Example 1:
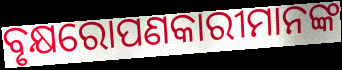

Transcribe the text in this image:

ବୃକ୍ଷରୋପଣକାରୀମାନଙ୍କ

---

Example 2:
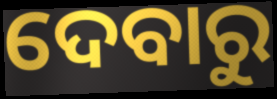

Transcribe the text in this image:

ଦେବାରୁ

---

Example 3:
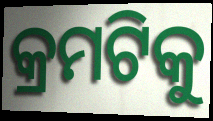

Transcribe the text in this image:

କ୍ରମଟିକୁ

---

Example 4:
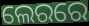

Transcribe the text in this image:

ଲେରରେ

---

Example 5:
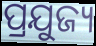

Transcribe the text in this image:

ପ୍ରଯୁଜ୍ୟ